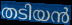
തടിയൻ